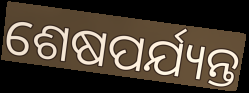
ଶେଷପର୍ଯ୍ୟନ୍ତ